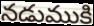
నడుముకి